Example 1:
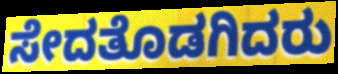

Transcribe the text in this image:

ಸೇದತೊಡಗಿದರು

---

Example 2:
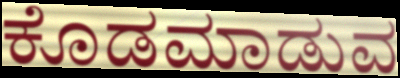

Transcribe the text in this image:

ಕೊಡಮಾಡುವ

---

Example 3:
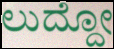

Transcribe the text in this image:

ಲುದ್ದೋ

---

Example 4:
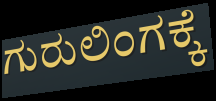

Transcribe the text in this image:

ಗುರುಲಿಂಗಕ್ಕೆ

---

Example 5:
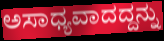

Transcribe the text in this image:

ಅಸಾಧ್ಯವಾದದ್ದನ್ನು